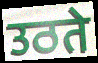
उठते